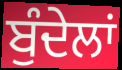
ਬੁੰਦੇਲਾਂ